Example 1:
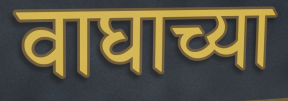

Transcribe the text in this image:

वाघाच्या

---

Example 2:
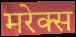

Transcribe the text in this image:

मरेक्स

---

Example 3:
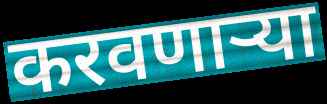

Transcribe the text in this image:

करवणाऱ्या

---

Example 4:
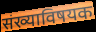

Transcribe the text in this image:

संख्याविषयक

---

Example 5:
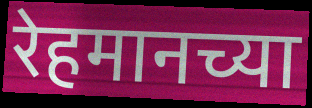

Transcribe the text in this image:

रेहमानच्या